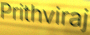
Prithviraj